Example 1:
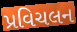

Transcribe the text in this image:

પ્રવિચલન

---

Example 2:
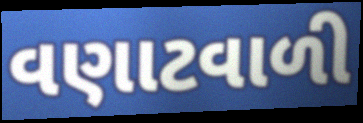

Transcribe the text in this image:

વણાટવાળી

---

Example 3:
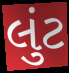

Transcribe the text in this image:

લુંટ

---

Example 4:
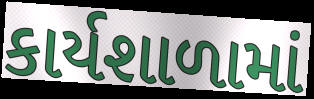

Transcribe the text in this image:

કાર્યશાળામાં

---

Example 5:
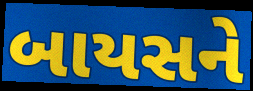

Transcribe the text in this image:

બાયસને